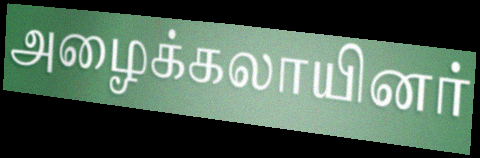
அழைக்கலாயினர்